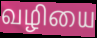
வழியை